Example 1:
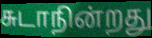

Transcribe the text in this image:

சுடாநின்றது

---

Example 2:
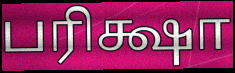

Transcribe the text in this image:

பரிக்ஷா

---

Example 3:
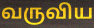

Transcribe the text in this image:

வருவிய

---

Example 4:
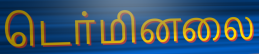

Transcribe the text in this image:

டெர்மினலை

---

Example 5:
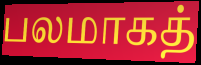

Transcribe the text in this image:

பலமாகத்